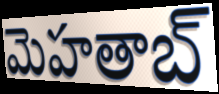
మెహతాబ్